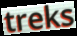
treks